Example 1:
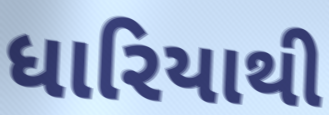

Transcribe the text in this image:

ધારિયાથી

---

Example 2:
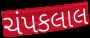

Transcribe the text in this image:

ચંપકલાલ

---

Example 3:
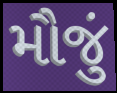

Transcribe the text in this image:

મૌજું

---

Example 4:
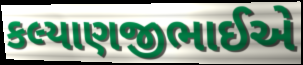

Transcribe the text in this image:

કલ્યાણજીભાઈએ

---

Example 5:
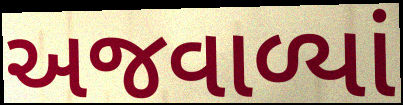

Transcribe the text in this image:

અજવાળ્યાં